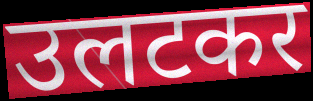
उलटकर